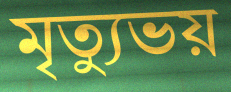
মৃত্যুভয়